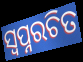
ସ୍ୱପ୍ନରଚିତ